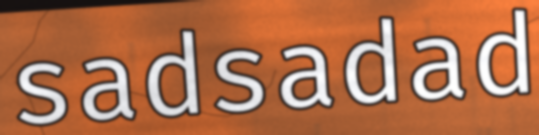
sadsadad